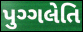
પુગ્ગલેતિ